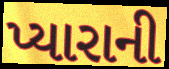
પ્યારાની